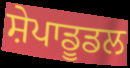
ਸ਼ੇਪਾਡੂਡਲ